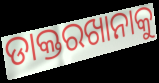
ଡାକ୍ତରଖାନାକୁ